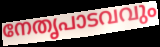
നേതൃപാടവവും